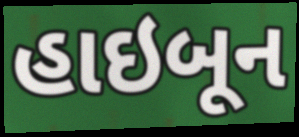
હાઇબૂન